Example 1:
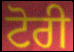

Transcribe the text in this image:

ਟੋਰੀ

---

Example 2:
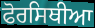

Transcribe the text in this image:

ਫੋਰਸਿਥੀਆ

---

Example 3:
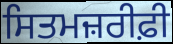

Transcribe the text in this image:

ਸਿਤਮਜ਼ਰੀਫ਼ੀ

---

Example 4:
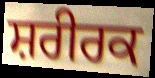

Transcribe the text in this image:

ਸ਼ਰੀਰਕ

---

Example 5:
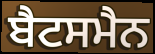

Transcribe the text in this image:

ਬੈਟਸਮੈਨ